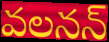
వలనన్